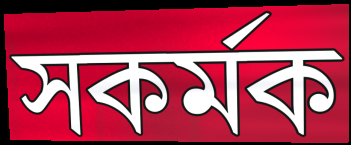
সকর্মক